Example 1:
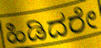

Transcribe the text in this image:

ಹಿಡಿದರೇ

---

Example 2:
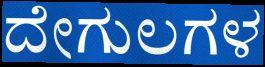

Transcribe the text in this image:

ದೇಗುಲಗಳ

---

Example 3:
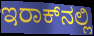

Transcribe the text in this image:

ಇರಾಕ್‍ನಲ್ಲಿ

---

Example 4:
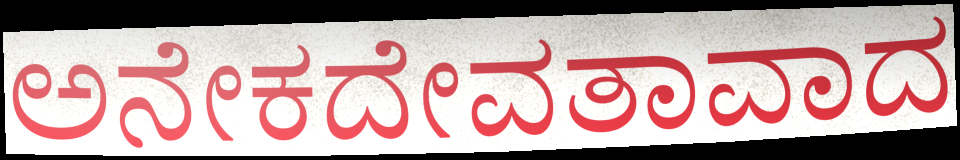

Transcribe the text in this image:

ಅನೇಕದೇವತಾವಾದ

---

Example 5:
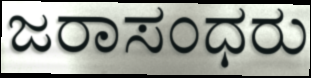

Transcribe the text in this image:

ಜರಾಸಂಧರು